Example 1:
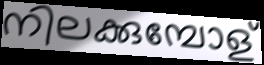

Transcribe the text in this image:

നിലക്കുമ്പോള്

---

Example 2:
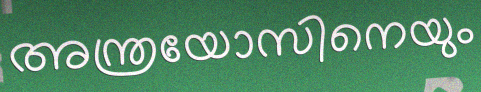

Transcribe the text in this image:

അന്ത്രയോസിനെയും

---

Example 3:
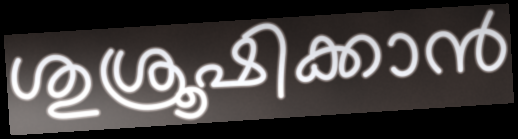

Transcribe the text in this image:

ശുശ്രൂഷിക്കാൻ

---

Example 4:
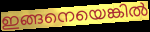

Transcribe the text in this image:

ഇങ്ങനെയെങ്കിൽ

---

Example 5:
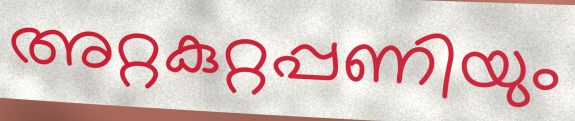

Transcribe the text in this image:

അറ്റകുറ്റപ്പണിയും